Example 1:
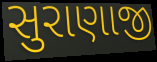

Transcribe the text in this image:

સુરાણાજી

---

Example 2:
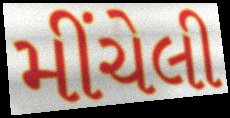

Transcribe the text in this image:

મીંચેલી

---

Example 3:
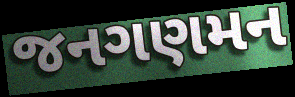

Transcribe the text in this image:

જનગણમન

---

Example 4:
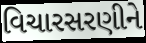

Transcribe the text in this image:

વિચારસરણીને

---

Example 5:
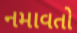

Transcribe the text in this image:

નમાવતો